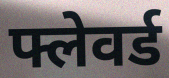
फ्लेवर्ड